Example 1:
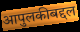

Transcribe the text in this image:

आपुलकीबद्दल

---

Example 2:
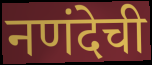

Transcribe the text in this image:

नणंदेची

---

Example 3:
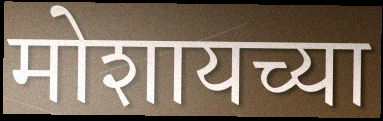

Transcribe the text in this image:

मोशायच्या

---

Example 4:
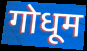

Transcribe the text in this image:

गोधूम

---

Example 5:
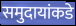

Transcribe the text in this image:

समुदायांकडे